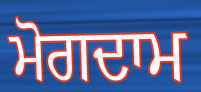
ਮੋਗਦਾਮ